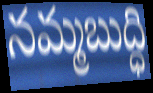
నమ్మబుద్ధి